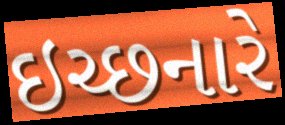
ઇચ્છનારે